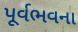
પૂર્વભવના